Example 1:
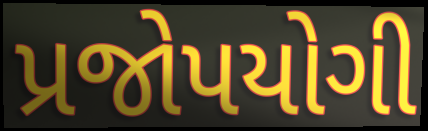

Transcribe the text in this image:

પ્રજોપયોગી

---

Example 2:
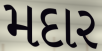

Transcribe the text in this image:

મદાર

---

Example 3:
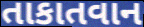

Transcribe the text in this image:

તાકાતવાન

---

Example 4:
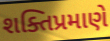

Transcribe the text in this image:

શક્તિપ્રમાણે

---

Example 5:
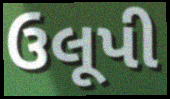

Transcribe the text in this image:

ઉલૂપી